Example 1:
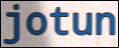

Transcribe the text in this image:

jotun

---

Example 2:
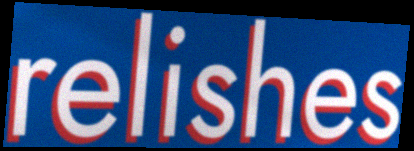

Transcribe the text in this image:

relishes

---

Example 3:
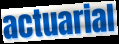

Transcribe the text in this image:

actuarial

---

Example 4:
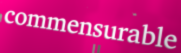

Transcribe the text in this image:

commensurable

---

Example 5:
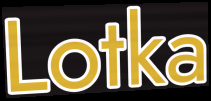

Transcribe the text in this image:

Lotka